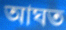
আঘত